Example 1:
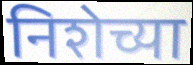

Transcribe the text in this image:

निशेच्या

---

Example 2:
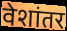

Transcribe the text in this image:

वेशांतर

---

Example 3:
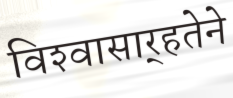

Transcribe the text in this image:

विश्वासार्हतेने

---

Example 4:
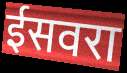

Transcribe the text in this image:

ईसवरा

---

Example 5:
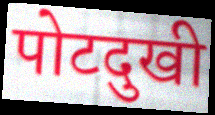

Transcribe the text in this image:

पोटदुखी